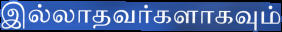
இல்லாதவர்களாகவும்